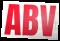
ABV